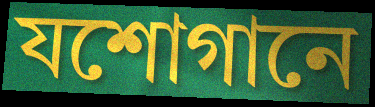
যশোগানে